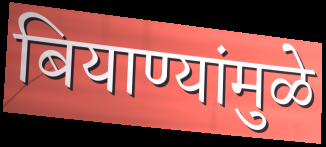
बियाण्यांमुळे